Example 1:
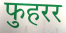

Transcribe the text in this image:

फुहरर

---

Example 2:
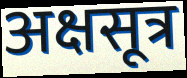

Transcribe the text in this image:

अक्षसूत्र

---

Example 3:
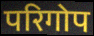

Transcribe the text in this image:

परिगोप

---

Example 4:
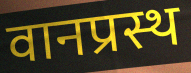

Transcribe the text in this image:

वानप्रस्थ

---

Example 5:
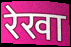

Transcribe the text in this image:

रेखा